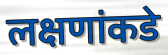
लक्षणांकडे